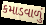
કમાડવાળું